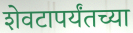
शेवटापर्यंतच्या